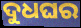
ଦୁଧଘର